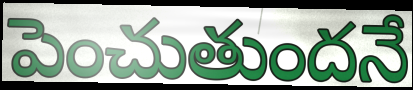
పెంచుతుందనే